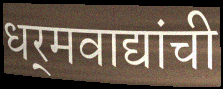
धर्मवाद्यांची